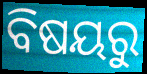
ବିଷୟରୁ